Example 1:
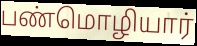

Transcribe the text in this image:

பண்மொழியார்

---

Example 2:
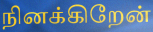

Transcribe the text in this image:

நினக்கிறேன்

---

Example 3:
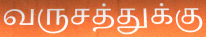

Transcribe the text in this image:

வருசத்துக்கு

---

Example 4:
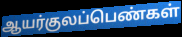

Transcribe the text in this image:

ஆயர்குலப்பெண்கள்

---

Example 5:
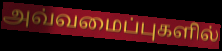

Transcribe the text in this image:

அவ்வமைப்புகளில்